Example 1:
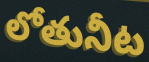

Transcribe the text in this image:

లోతునీట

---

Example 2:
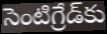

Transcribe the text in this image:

సెంటిగ్రేడ్‌కు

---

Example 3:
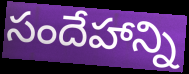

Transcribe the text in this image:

సందేహాన్ని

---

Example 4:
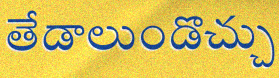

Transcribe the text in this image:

తేడాలుండొచ్చు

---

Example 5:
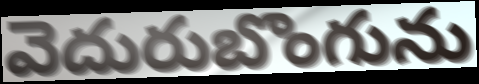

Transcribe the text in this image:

వెదురుబొంగును